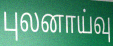
புலனாய்வு